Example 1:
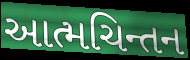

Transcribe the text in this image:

આત્મચિન્તન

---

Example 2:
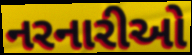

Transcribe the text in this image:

નરનારીઓ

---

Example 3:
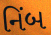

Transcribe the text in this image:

નિંબ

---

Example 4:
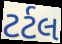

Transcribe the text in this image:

ટર્ટલ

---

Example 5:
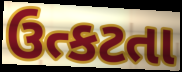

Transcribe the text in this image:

ઉત્કટતા